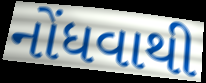
નોંધવાથી